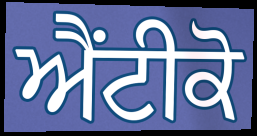
ਐਂਟੀਕੋ